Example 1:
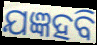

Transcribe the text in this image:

ଯଜ୍ଞହବି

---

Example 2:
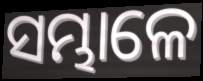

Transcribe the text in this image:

ସମ୍ଭାଳେ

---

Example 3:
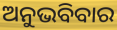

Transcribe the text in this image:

ଅନୁଭବିବାର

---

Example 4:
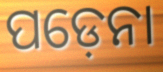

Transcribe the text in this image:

ପଡ଼େନା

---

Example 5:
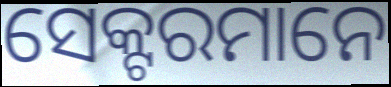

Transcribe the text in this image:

ସେକ୍ଟରମାନେ